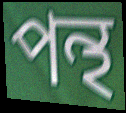
পন্থ